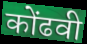
कोंढवी